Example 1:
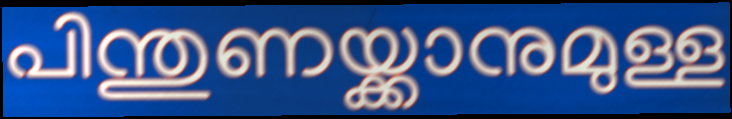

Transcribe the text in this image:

പിന്തുണയ്ക്കാനുമുള്ള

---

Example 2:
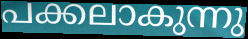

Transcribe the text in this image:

പക്കലാകുന്നു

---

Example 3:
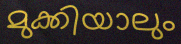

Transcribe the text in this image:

മുക്കിയാലും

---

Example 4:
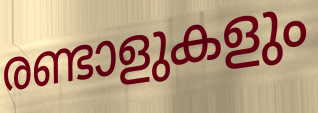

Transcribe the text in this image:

രണ്ടാളുകളും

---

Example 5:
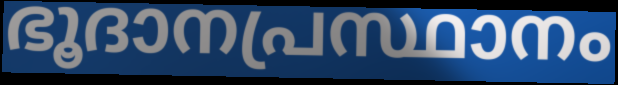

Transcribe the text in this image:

ഭൂദാനപ്രസ്ഥാനം